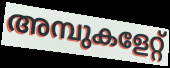
അമ്പുകളേറ്റ്